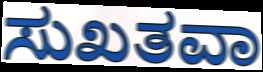
ಸುಖತವಾ